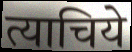
त्याचिये